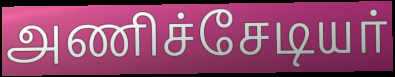
அணிச்சேடியர்